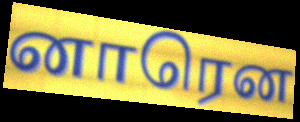
னாரென